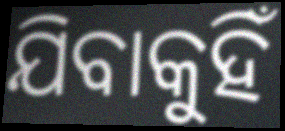
ଯିବାକୁହିଁ